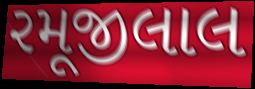
રમૂજીલાલ